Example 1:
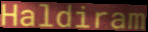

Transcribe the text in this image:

Haldiram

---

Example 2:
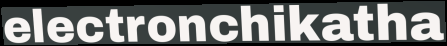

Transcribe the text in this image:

electronchikatha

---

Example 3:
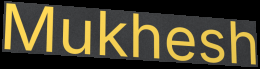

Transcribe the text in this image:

Mukhesh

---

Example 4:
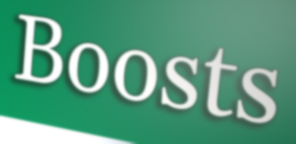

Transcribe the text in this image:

Boosts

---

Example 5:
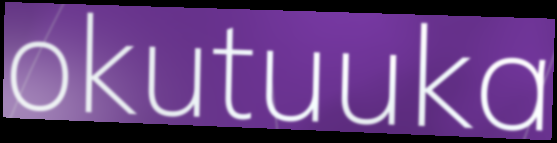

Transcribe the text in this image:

okutuuka